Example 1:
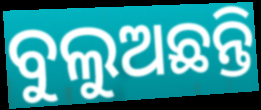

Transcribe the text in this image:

ବୁଲୁଅଛନ୍ତି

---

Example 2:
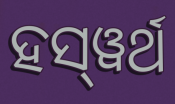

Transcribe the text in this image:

ହସ୍‌ୱର୍ଥ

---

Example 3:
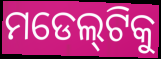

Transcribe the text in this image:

ମଡେଲ୍‌ଟିକୁ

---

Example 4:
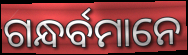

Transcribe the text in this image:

ଗନ୍ଧର୍ବମାନେ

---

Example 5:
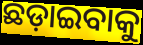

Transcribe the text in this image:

ଛଡ଼ାଇବାକୁ